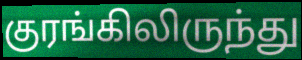
குரங்கிலிருந்து